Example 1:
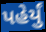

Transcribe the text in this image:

પહેર્યું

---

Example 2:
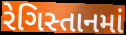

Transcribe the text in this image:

રેગિસ્તાનમાં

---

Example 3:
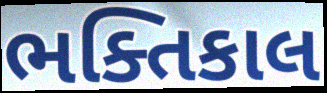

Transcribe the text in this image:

ભક્તિકાલ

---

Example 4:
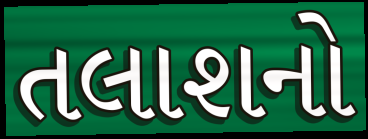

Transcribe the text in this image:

તલાશનો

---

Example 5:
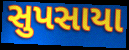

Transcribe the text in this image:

સુપસાયા